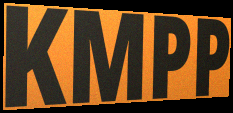
KMPP